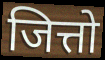
जित्तो